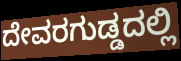
ದೇವರಗುಡ್ಡದಲ್ಲಿ